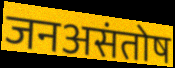
जनअसंतोष